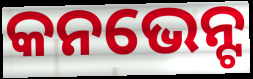
କନଭେନ୍ଟ